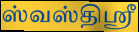
ஸ்வஸ்திஸ்ரீ